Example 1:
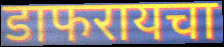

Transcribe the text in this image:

डाफरायचा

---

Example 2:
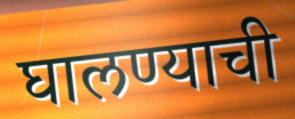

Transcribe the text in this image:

घालण्याची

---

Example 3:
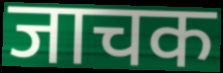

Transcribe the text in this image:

जाचक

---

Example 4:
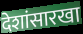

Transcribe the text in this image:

देशांसारखा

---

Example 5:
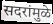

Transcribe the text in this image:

सदरांमुळे